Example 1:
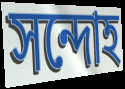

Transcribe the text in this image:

সন্দোহ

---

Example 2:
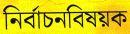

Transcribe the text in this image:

নির্বাচনবিষয়ক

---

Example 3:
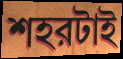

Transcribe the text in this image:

শহরটাই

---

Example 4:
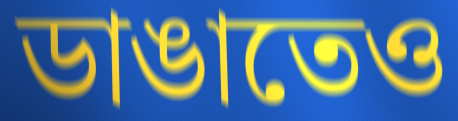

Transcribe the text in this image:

ডাঙাতেও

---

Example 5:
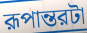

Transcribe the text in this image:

রূপান্তরটা